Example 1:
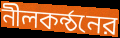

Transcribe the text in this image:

নীলকন্ঠনের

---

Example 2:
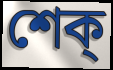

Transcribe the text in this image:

শেক্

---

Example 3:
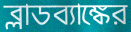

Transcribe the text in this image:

ব্লাডব্যাঙ্কের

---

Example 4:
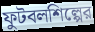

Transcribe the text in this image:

ফুটবলশিল্পের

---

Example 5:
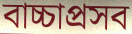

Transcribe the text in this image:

বাচ্চাপ্রসব